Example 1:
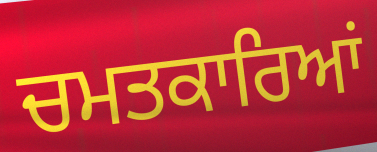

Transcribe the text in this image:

ਚਮਤਕਾਰਿਆਂ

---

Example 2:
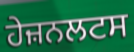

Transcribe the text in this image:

ਹੇਜ਼ਨਲਟਸ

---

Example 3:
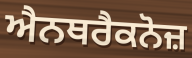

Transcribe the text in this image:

ਐਨਥਰੈਕਨੋਜ਼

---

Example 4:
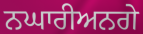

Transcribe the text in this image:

ਨਘਾਰੀਅਨਗੇ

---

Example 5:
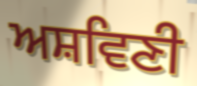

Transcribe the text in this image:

ਅਸ਼ਵਿਣੀ